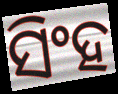
ସିଂହ